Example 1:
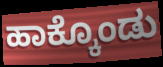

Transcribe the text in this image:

ಹಾಕ್ಕೊಂಡು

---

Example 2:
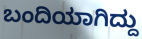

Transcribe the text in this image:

ಬಂದಿಯಾಗಿದ್ದು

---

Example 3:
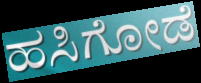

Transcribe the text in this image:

ಹಸಿಗೋಡೆ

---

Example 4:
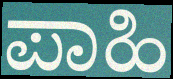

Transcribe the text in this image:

ಪಾಹಿ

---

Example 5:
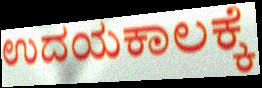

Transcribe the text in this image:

ಉದಯಕಾಲಕ್ಕೆ